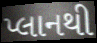
પ્લાનથી